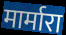
मार्मारा